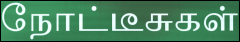
நோட்டீசுகள்